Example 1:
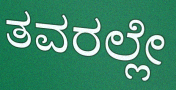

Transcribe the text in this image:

ತವರಲ್ಲೇ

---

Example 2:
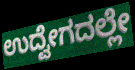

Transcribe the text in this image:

ಉದ್ವೇಗದಲ್ಲೇ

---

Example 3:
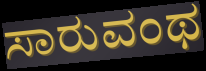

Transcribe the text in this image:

ಸಾರುವಂಥ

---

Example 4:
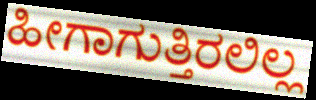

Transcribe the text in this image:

ಹೀಗಾಗುತ್ತಿರಲಿಲ್ಲ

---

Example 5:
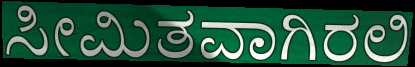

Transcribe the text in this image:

ಸೀಮಿತವಾಗಿರಲಿ